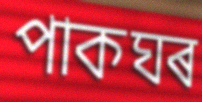
পাকঘৰ